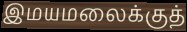
இமயமலைக்குத்